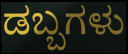
ಡಬ್ಬಗಳು